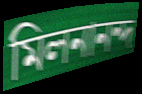
মিলনানন্দ